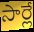
సార్లే